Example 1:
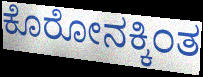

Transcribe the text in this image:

ಕೊರೋನಕ್ಕಿಂತ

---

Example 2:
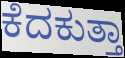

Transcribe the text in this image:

ಕೆದಕುತ್ತಾ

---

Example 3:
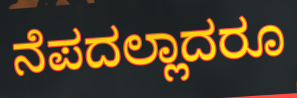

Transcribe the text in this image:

ನೆಪದಲ್ಲಾದರೂ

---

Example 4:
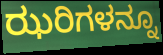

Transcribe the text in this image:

ಝರಿಗಳನ್ನೂ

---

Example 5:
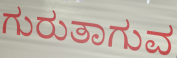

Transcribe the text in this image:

ಗುರುತಾಗುವ